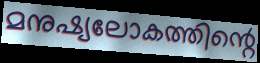
മനുഷ്യലോകത്തിന്റെ